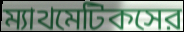
ম্যাথমেটিকসের